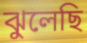
ঝুলেছি